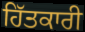
ਹਿੱਤਕਾਰੀ